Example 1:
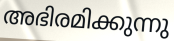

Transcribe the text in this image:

അഭിരമിക്കുന്നു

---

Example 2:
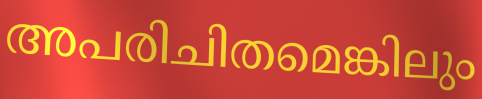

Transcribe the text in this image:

അപരിചിതമെങ്കിലും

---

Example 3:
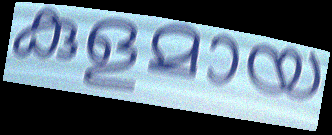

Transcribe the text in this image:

കുളമായ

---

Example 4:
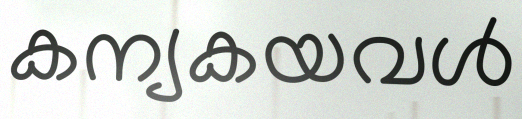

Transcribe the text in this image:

കന്യകയവൾ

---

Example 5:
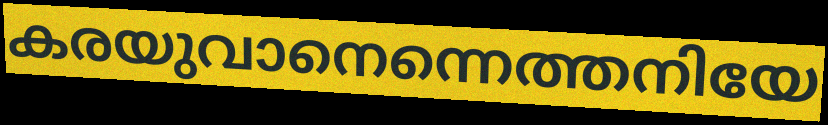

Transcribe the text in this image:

കരയുവാനെന്നെത്തനിയേ